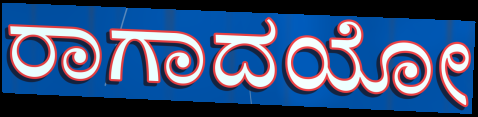
ರಾಗಾದಯೋ